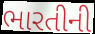
ભારતીની